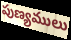
పుణ్యములు